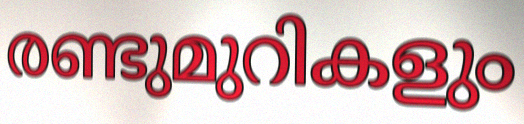
രണ്ടുമുറികളും